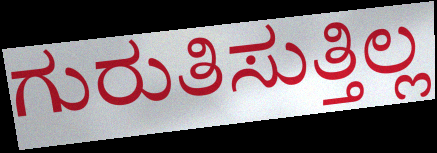
ಗುರುತಿಸುತ್ತಿಲ್ಲ